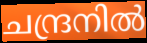
ചന്ദ്രനിൽ